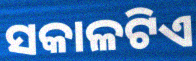
ସକାଳଟିଏ